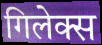
गिलेक्स